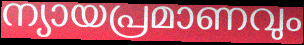
ന്യായപ്രമാണവും